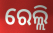
ରେଲ୍ଲି